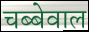
चब्बेवाल